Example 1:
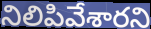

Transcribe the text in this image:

నిలిపివేశారని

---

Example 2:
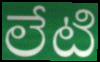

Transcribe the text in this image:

లేటి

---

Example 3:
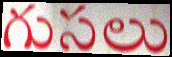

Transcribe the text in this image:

గుసలు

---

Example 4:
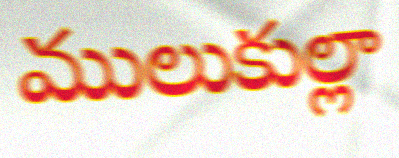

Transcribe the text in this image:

ములుకుల్లా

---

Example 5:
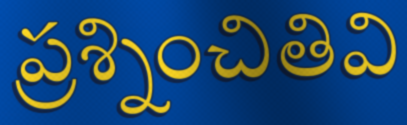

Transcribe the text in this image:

ప్రశ్నించితివి